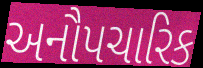
અનૌપચારિક